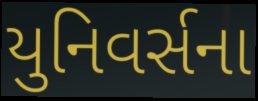
યુનિવર્સના